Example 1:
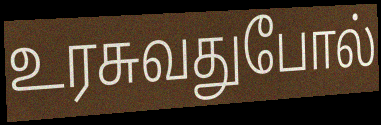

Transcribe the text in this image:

உரசுவதுபோல்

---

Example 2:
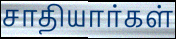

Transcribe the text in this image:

சாதியார்கள்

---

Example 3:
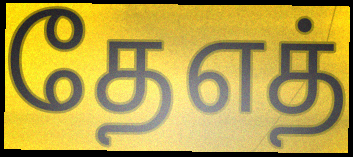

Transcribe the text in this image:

தேஎத்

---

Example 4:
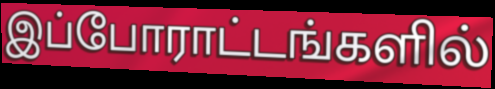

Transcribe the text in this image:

இப்போராட்டங்களில்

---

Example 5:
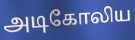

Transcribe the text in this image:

அடிகோலிய